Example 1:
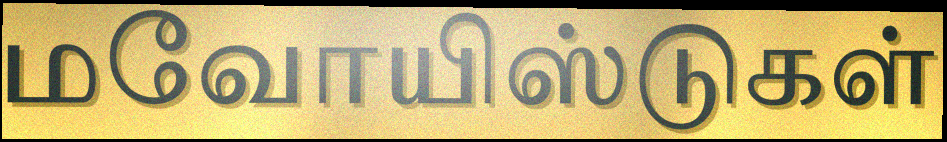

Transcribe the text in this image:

மவோயிஸ்டுகள்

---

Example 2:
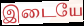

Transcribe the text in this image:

இடையே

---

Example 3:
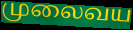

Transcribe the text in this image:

முலைவய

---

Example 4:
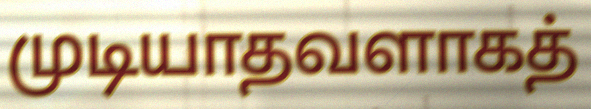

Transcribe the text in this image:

முடியாதவளாகத்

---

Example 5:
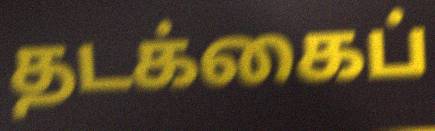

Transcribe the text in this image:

தடக்கைப்